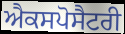
ਐਕਸਪੋਸੈਟਰੀ